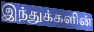
இந்துக்களின்